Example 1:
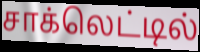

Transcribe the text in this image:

சாக்லெட்டில்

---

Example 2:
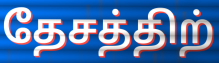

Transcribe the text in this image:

தேசத்திற்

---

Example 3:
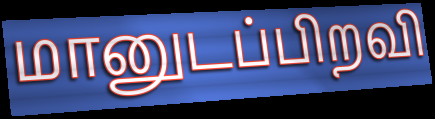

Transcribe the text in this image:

மானுடப்பிறவி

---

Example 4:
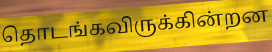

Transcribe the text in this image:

தொடங்கவிருக்கின்றன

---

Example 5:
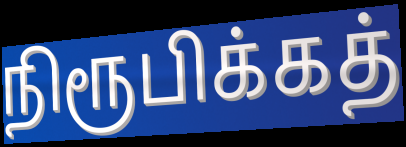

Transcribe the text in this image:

நிரூபிக்கத்